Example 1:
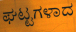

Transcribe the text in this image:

ಘಟ್ಟಗಳಾದ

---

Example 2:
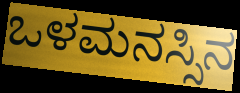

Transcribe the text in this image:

ಒಳಮನಸ್ಸಿನ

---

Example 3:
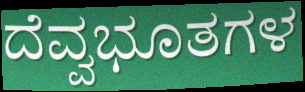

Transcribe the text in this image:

ದೆವ್ವಭೂತಗಳ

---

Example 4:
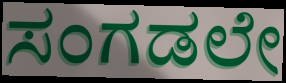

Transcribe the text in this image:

ಸಂಗಡಲೇ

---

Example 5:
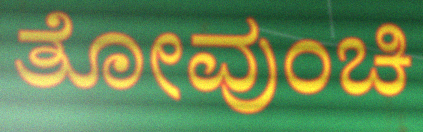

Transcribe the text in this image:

ತೋವುಂಚಿ